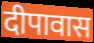
दीपावास